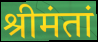
श्रीमंतां